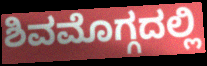
ಶಿವಮೊಗ್ಗದಲ್ಲಿ